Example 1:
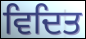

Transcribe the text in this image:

ਵਿਦਿਤ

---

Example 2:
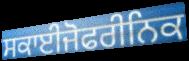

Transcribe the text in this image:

ਸਕਾਈਜੋਫਰੀਨਿਕ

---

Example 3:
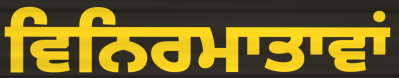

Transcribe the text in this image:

ਵਿਨਿਰਮਾਤਾਵਾਂ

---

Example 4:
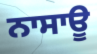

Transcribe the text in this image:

ਨਾਸਾਊ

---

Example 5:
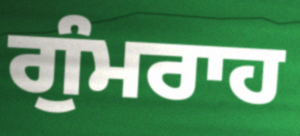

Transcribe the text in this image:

ਗੁੰਮਰਾਹ